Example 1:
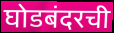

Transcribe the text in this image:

घोडबंदरची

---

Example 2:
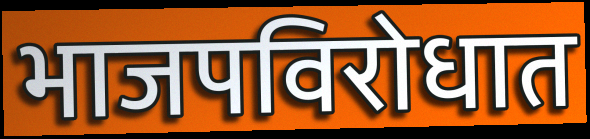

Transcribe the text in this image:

भाजपविरोधात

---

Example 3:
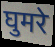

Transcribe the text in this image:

घुमरे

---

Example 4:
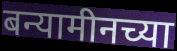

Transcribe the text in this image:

बन्यामीनच्या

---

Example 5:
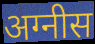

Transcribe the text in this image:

अग्नीस